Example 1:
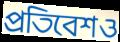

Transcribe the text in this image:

প্রতিবেশও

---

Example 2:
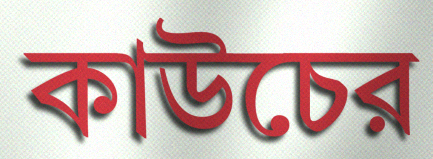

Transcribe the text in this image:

কাউচের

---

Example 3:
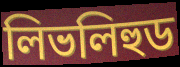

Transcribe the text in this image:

লিভলিহুড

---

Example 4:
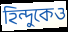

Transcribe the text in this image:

হিন্দুকেও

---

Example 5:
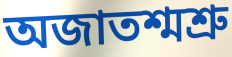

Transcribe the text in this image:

অজাতশ্মশ্রু